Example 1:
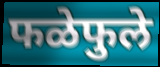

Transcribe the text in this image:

फळेफुले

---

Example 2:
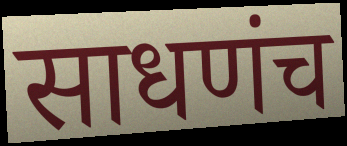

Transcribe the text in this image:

साधणंच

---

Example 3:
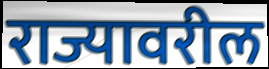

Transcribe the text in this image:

राज्यावरील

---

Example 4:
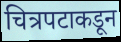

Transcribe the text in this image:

चित्रपटाकडून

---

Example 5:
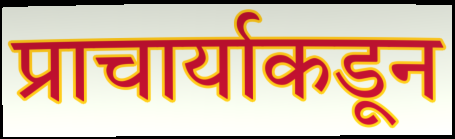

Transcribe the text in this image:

प्राचार्याकडून